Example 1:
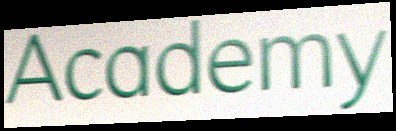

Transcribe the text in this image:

Academy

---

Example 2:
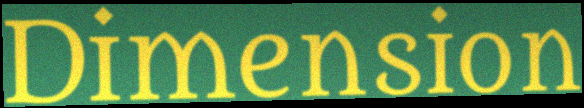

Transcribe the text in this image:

Dimension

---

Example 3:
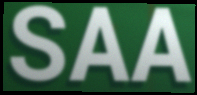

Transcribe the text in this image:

SAA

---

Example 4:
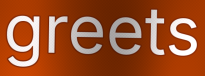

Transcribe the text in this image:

greets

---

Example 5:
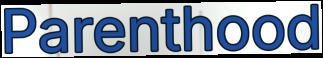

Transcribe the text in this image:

Parenthood